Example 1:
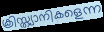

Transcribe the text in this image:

ക്രിസ്ത്യാനികളെന്ന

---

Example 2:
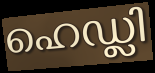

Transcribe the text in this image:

ഹെഡ്ലി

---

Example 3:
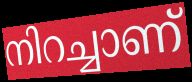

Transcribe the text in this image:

നിറച്ചാണ്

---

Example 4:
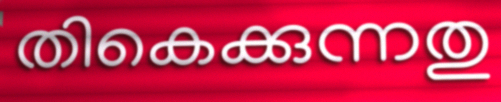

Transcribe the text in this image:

തികെക്കുന്നതു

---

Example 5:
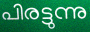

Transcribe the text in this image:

പിരട്ടുന്നു